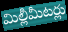
మిల్లీమీటర్లు